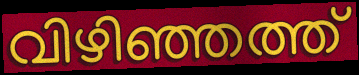
വിഴിഞ്ഞത്ത്